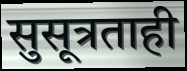
सुसूत्रताही